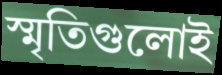
স্মৃতিগুলোই